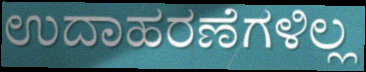
ಉದಾಹರಣೆಗಳಿಲ್ಲ